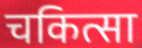
चकित्सा